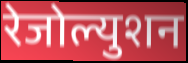
रेजोल्युशन